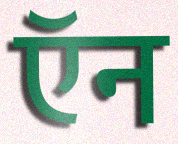
ऍन